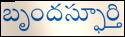
బృందస్ఫూర్తి